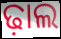
ଢ଼ାଲ